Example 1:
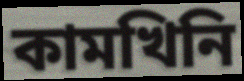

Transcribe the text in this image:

কামখিনি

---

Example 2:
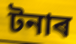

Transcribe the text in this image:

টনাৰ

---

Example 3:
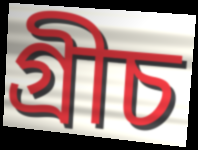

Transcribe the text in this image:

গ্ৰীচ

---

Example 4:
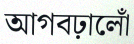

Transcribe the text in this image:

আগবঢ়ালোঁ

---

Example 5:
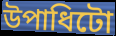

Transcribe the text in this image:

উপাধিটো